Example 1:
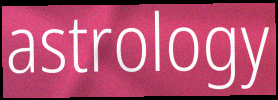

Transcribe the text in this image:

astrology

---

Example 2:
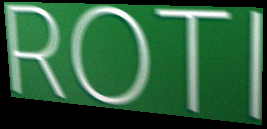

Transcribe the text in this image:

ROTI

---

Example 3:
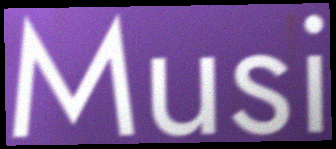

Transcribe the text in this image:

Musi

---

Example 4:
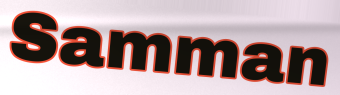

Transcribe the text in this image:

Samman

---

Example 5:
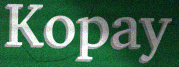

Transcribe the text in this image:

Kopay